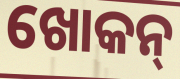
ଖୋକନ୍